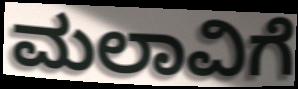
ಮಲಾವಿಗೆ